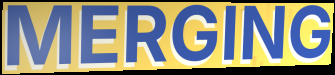
MERGING